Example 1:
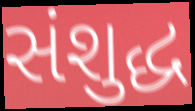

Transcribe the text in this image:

સંશુદ્ધ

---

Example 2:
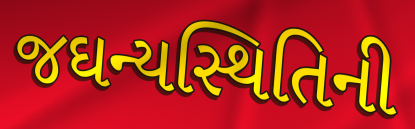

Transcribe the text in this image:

જઘન્યસ્થિતિની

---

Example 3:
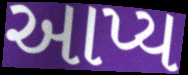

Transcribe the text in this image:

આપ્ય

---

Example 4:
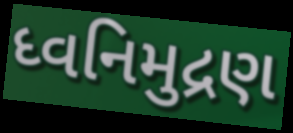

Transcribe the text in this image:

ધ્વનિમુદ્રણ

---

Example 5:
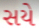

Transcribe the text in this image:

સયે